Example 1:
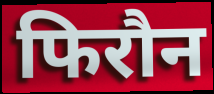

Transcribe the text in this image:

फिरौन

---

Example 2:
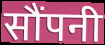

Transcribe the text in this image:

सौंपनी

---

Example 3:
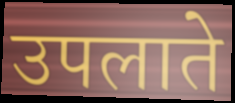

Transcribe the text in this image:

उपलाते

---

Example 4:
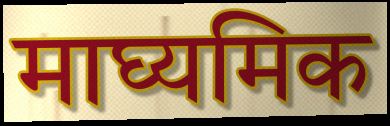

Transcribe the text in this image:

माघ्यमिक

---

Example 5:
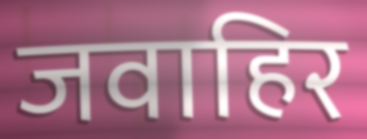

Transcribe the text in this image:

जवाहिर